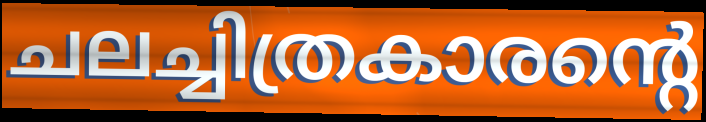
ചലച്ചിത്രകാരന്റെ